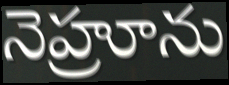
నెహ్రూను